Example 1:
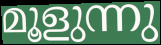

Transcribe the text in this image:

മൂളുന്നു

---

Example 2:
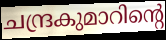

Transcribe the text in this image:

ചന്ദ്രകുമാറിന്റെ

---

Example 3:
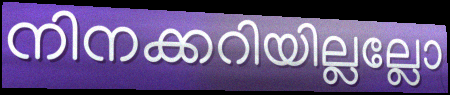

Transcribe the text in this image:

നിനക്കറിയില്ലല്ലോ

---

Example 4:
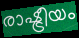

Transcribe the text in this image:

രാഷ്ട്രീയം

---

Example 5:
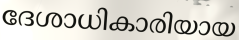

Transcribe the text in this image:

ദേശാധികാരിയായ